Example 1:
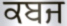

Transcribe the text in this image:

ਕਬਜ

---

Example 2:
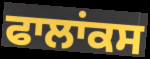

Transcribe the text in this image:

ਫਾਲਾਂਕਸ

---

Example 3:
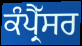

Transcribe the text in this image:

ਕੰਪ੍ਰੈੱਸਰ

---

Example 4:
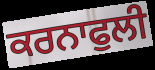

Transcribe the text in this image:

ਕਰਨਾਫੁਲੀ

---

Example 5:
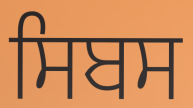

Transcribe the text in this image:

ਸਿਬਸ